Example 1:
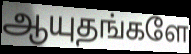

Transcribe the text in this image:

ஆயுதங்களே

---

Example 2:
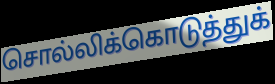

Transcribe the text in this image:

சொல்லிக்கொடுத்துக்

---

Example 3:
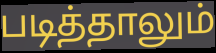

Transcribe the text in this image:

படித்தாலும்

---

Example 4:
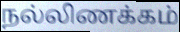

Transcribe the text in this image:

நல்லிணக்கம்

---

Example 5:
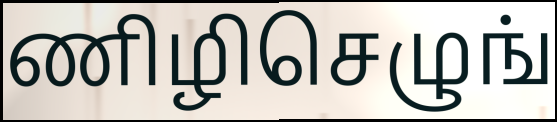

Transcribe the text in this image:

ணிழிசெழுங்